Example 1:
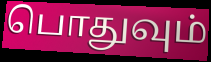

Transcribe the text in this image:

பொதுவும்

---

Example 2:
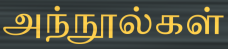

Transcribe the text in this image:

அந்நூல்கள்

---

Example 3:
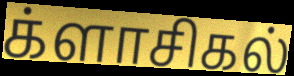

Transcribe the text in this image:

க்ளாசிகல்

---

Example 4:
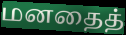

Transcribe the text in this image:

மனதைத்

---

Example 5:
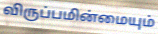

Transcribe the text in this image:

விருப்பமின்மையும்